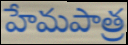
హేమపాత్ర